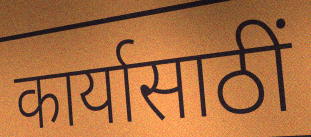
कार्यासाठीं